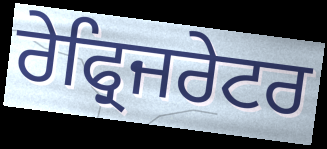
ਰੇਫ੍ਰਿਜਰੇਟਰ